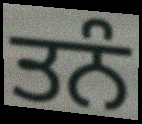
ਤਨੰ